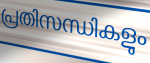
പ്രതിസന്ധികളും